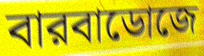
বারবাডোজে